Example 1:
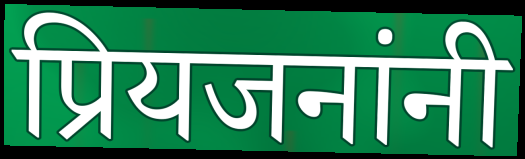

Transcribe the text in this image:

प्रियजनांनी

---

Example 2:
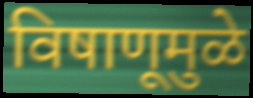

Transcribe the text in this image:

विषाणूमुळे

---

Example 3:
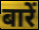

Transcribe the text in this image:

बारें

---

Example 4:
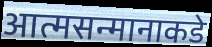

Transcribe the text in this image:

आत्मसन्मानाकडे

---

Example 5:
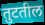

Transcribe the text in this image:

तुटतील